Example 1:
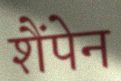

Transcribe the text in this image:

शैंपेन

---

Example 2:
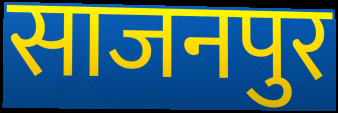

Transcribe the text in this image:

साजनपुर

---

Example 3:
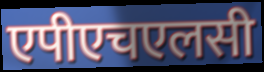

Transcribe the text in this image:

एपीएचएलसी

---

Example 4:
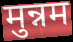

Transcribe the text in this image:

मुन्नम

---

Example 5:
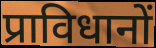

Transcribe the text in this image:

प्राविधानों